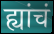
ह्यांचं